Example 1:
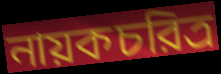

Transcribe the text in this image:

নায়কচরিত্র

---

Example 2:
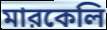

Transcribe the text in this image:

মারকেলি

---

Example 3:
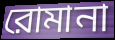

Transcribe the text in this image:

রোমানা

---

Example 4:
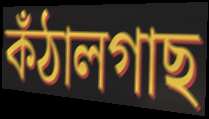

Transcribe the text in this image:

কঁঠালগাছ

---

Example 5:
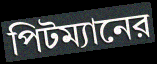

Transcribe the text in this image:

পিটম্যানের